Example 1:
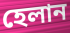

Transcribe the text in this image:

হেলান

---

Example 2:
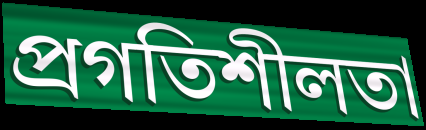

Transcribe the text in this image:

প্রগতিশীলতা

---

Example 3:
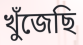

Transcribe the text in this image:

খুঁজেছি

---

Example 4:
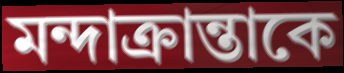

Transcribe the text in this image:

মন্দাক্রান্তাকে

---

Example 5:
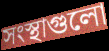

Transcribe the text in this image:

সংস্থাগুলো